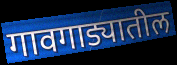
गावगाड्यातील